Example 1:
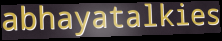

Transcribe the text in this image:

abhayatalkies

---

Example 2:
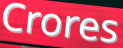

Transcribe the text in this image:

Crores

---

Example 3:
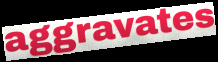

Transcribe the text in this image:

aggravates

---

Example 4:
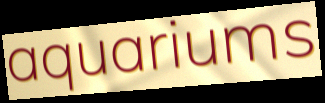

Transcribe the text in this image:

aquariums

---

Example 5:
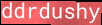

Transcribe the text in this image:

ddrdushy